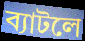
ব্যাটলে